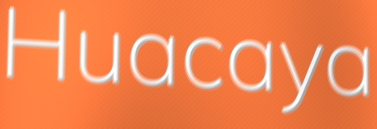
Huacaya